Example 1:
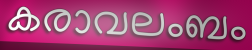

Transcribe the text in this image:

കരാവലംബം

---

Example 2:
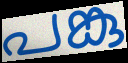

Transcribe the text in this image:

പങ്കു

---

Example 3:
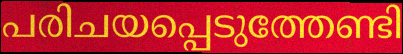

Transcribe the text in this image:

പരിചയപ്പെടുത്തേണ്ടി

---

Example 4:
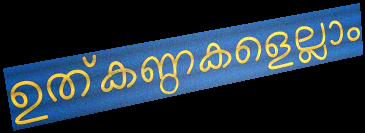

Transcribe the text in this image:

ഉത്കണ്ഠകളെല്ലാം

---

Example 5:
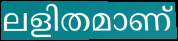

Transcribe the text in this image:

ലളിതമാണ്